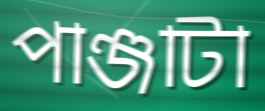
পাঞ্জাটা